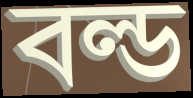
বল্ড